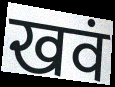
खवं